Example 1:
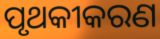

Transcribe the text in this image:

ପୃଥକୀକରଣ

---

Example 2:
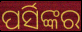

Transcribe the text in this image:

ପର୍ସିଙ୍କର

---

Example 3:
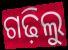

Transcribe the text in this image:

ଗଢ଼ିଲୁ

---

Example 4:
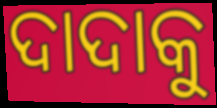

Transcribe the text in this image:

ଦାଦାକୁ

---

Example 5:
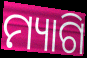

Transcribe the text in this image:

ମ୍ୟାଗି